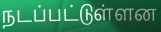
நடப்பட்டுள்ளன